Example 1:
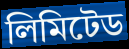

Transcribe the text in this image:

লিমিটেড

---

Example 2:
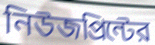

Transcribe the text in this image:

নিউজপ্রিন্টের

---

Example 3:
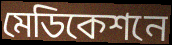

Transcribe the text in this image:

মেডিকেশনে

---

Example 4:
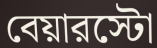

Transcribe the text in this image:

বেয়ারস্টো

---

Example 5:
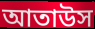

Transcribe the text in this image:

আতাউস